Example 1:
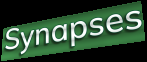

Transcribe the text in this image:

Synapses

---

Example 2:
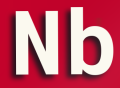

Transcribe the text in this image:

Nb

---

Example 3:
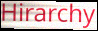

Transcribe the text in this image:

Hirarchy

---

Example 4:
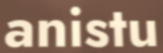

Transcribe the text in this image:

anistu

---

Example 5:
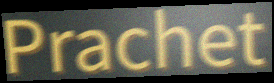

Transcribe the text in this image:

Prachet